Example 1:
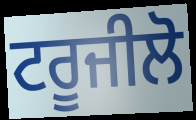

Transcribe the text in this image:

ਟਰੂਜੀਲੋ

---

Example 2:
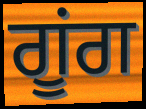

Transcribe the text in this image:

ਗੂਂਗ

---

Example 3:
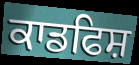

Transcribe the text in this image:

ਕਾਡਫਿਸ਼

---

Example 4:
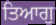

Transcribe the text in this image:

ਤਿਆਗੁ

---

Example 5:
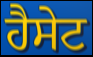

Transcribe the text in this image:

ਹੈਸੇਟ